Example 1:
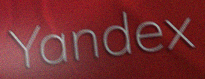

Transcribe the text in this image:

Yandex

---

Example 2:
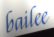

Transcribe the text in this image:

bailee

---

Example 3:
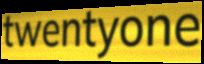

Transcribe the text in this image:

twentyone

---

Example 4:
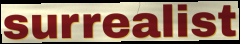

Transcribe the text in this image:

surrealist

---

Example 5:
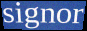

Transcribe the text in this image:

signor